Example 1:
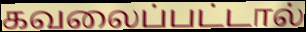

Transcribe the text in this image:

கவலைப்பட்டால்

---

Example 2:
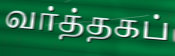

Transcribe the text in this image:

வர்த்தகப்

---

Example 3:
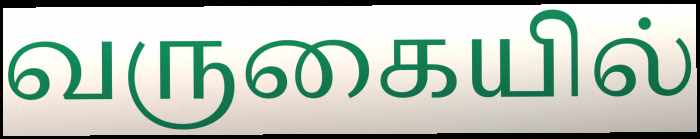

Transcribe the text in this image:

வருகையில்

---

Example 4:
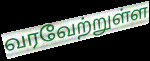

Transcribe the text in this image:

வரவேற்றுள்ள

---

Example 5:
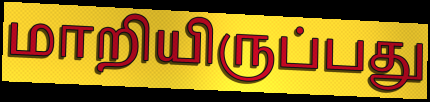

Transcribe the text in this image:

மாறியிருப்பது